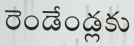
రెండేండ్లకు